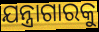
ଯନ୍ତ୍ରାଗାରକୁ